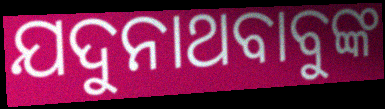
ଯଦୁନାଥବାବୁଙ୍କ